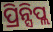
ପ୍ରିନ୍ସିପ୍ଲ